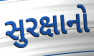
સુરક્ષાનો